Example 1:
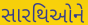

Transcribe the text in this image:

સારથિઓને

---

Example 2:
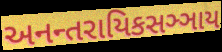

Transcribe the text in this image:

અનન્તરાયિકસઞ્ઞાય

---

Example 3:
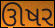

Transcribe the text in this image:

ઊષર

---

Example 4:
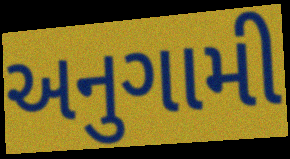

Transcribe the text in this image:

અનુગામી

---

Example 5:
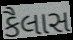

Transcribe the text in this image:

કૈલાસ